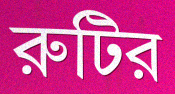
রুটির